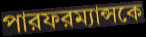
পারফরম্যান্সকে